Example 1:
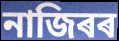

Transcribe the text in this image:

নাজিৰৰ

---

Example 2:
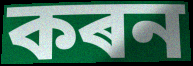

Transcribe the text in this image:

কৰন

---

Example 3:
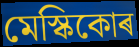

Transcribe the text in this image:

মেস্কিকোৰ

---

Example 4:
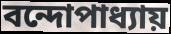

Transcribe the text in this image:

বন্দোপাধ্যায়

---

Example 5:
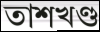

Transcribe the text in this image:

তাশখণ্ড